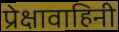
प्रेक्षावाहिनी